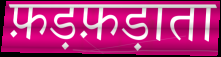
फ़ड़फ़ड़ाता